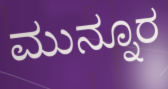
ಮುನ್ನೂರ